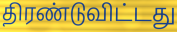
திரண்டுவிட்டது